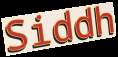
Siddh